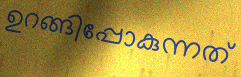
ഉറങ്ങിപ്പോകുന്നത്